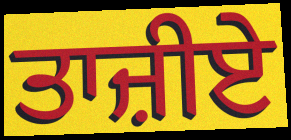
ਤਾਜ਼ੀਏ